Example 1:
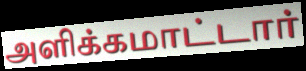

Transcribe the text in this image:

அளிக்கமாட்டார்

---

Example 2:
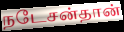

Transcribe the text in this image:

நடேசன்தான்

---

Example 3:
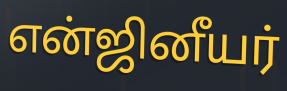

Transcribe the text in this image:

என்ஜினீயர்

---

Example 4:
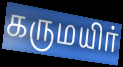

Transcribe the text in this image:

கருமயிர்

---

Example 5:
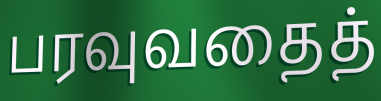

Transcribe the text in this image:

பரவுவதைத்